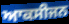
ਆਕਸੀਜਨ